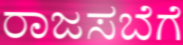
ರಾಜಸಬೆಗೆ